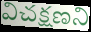
విచక్షణని